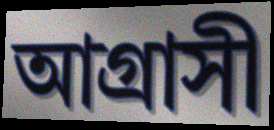
আগ্ৰাসী